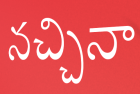
నచ్చినా